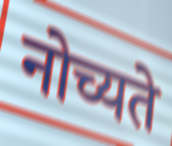
नोच्यते